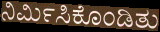
ನಿರ್ಮಿಸಿಕೊಂಡಿತು